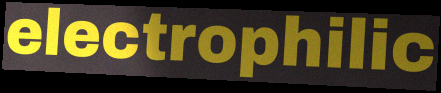
electrophilic